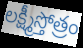
లక్ష్మీస్తోత్రం